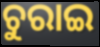
ଚୁରାଇ